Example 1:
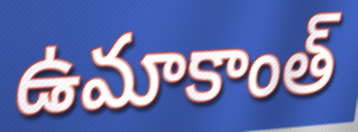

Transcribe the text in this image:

ఉమాకాంత్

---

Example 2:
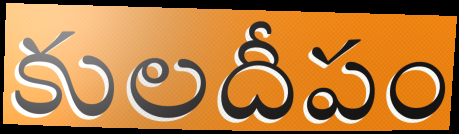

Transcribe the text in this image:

కులదీపం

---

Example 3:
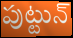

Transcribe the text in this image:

పుట్టున్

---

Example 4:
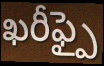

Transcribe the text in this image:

ఖరీఫ్పై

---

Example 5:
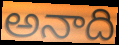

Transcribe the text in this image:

అనాది